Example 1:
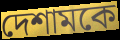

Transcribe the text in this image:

দেশামকে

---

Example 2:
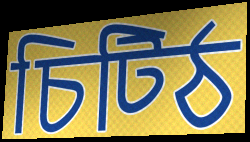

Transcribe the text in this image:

চিট্ঠি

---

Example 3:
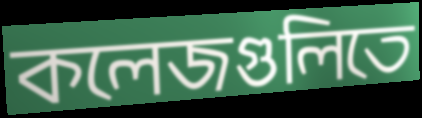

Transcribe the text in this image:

কলেজগুলিতে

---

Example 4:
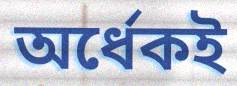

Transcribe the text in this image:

অর্ধেকই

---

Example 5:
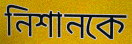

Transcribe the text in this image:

নিশানকে